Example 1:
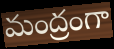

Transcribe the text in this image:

మంద్రంగా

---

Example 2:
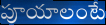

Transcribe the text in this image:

పూయాలంటే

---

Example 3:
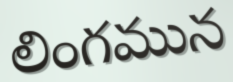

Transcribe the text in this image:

లింగమున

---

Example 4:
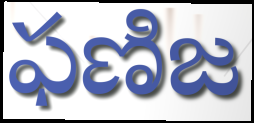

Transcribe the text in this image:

ఫణిజ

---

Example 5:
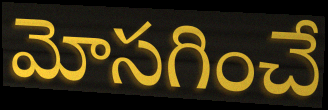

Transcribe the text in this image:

మోసగించే